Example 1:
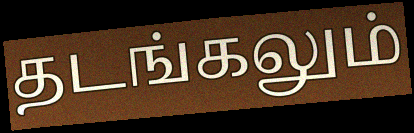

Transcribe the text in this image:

தடங்கலும்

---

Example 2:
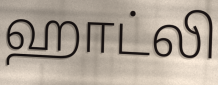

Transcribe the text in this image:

ஹாட்லி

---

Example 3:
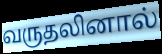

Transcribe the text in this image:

வருதலினால்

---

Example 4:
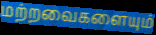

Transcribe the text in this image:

மற்றவைகளையும்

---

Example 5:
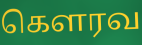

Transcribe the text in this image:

கெளரவ